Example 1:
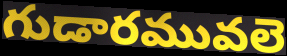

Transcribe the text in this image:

గుడారమువలె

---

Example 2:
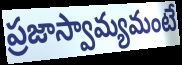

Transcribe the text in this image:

ప్రజాస్వామ్యమంటే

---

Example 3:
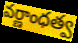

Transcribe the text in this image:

వర్ణాంధత్వ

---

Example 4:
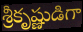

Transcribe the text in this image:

శ్రీకృష్ణుడిగా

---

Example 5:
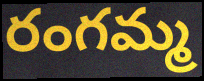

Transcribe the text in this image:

రంగమ్మ